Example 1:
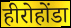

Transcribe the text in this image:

हीरोहोंडा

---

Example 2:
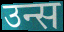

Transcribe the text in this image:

उन्स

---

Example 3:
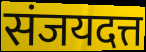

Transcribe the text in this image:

संजयदत्त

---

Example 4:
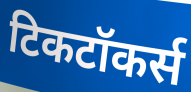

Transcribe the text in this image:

टिकटॉकर्स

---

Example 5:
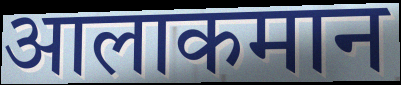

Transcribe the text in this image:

आलाकमान